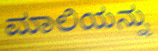
ಮಾಲಿಯನ್ನು